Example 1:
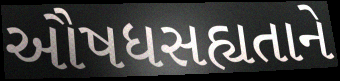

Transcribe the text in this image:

ઔષધસહ્યતાને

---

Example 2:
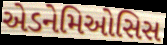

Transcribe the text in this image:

એડનેમિઓસિસ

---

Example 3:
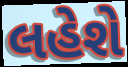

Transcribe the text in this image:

લહેશે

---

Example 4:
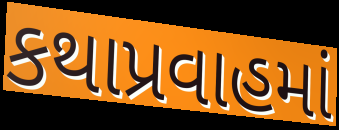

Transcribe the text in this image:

કથાપ્રવાહમાં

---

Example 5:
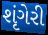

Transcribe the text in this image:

શૃંગેરી